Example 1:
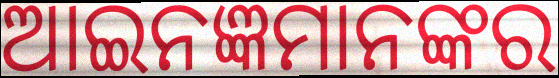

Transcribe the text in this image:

ଆଇନଜ୍ଞମାନଙ୍କର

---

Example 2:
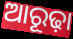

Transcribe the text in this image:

ଆରୂଢ଼ା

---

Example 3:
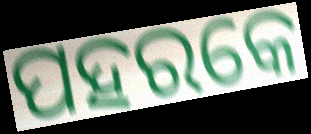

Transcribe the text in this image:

ପହରକେ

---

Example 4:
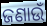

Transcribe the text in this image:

ଜଣାଉଁ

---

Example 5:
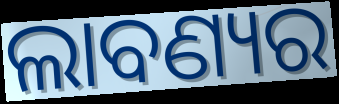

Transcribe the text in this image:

ଲାବଣ୍ୟର